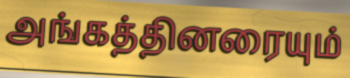
அங்கத்தினரையும்